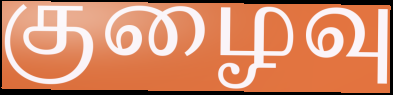
குழைவு